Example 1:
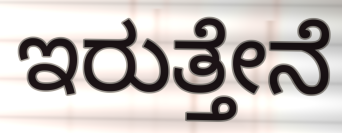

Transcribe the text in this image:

ಇರುತ್ತೇನೆ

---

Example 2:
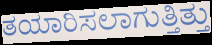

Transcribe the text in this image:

ತಯಾರಿಸಲಾಗುತ್ತಿತ್ತು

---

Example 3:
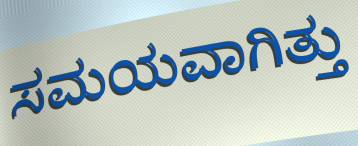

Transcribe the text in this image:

ಸಮಯವಾಗಿತ್ತು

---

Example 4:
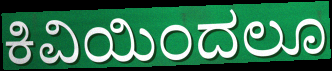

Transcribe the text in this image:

ಕಿವಿಯಿಂದಲೂ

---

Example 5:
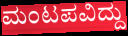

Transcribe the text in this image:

ಮಂಟಪವಿದ್ದು